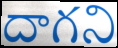
దాగని